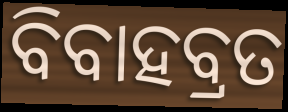
ବିବାହବ୍ରତ